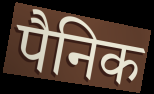
पैनिक